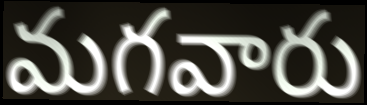
మగవారు